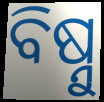
ବିଷ୍ନୁ